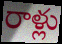
రాళ్లు